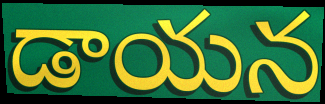
డాయన